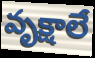
వృక్షాలే